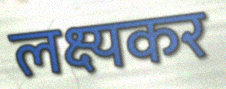
लक्ष्यकर